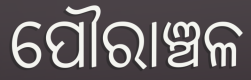
ପୌରାଞ୍ଚଳ